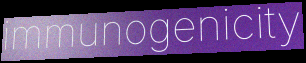
immunogenicity